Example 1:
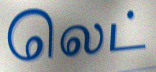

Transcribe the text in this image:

லெட்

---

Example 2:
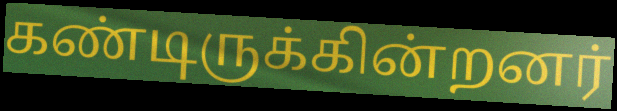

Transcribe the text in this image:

கண்டிருக்கின்றனர்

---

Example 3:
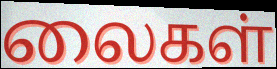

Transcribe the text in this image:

லைகள்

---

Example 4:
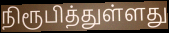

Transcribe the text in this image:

நிரூபித்துள்ளது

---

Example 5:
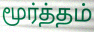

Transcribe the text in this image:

மூர்த்தம்